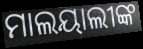
ମାଲୟାଲୀଙ୍କ